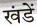
खंडें